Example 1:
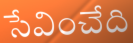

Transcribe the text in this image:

సేవించేది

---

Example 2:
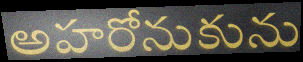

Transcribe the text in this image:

అహరోనుకును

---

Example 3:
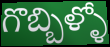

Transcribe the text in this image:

గొబ్బిళ్ళో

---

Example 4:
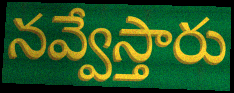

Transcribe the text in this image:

నవ్వేస్తారు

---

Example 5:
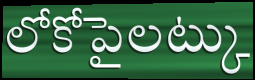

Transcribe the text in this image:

లోకోపైలట్కు